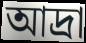
আদ্রা